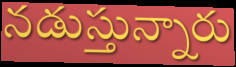
నడుస్తున్నారు